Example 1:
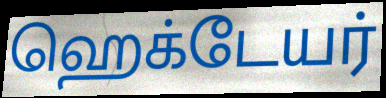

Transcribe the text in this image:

ஹெக்டேயர்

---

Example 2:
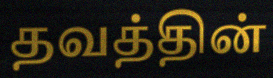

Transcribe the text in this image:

தவத்தின்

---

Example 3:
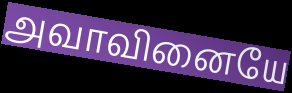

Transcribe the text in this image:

அவாவினையே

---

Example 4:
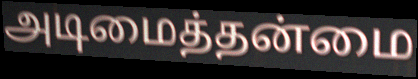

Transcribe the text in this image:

அடிமைத்தன்மை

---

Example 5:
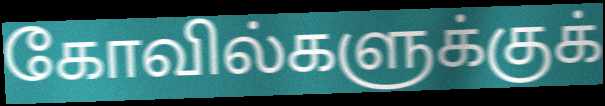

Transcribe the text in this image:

கோவில்களுக்குக்